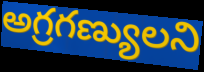
అగ్రగణ్యులని